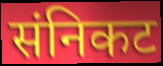
संनिकट